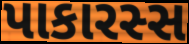
પાકારસ્સ